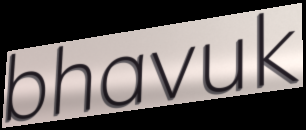
bhavuk